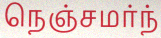
நெஞ்சமர்ந்